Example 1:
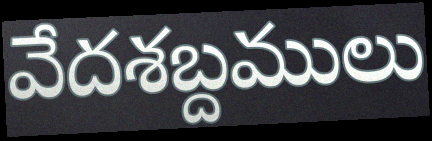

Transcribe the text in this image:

వేదశబ్దములు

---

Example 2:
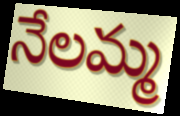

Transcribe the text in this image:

నేలమ్మ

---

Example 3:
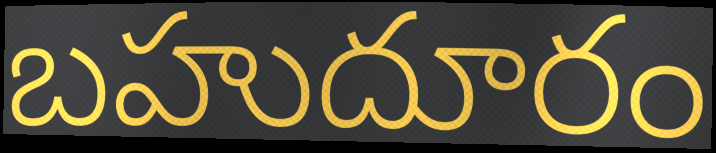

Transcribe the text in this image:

బహుదూరం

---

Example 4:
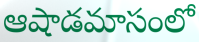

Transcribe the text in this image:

ఆషాడమాసంలో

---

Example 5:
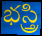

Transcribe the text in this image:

భస్త్రి